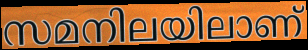
സമനിലയിലാണ്